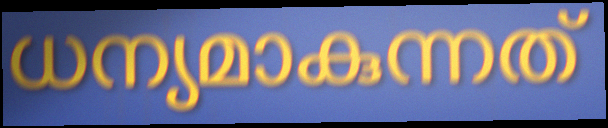
ധന്യമാകുന്നത്